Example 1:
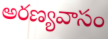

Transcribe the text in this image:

అరణ్యవాసం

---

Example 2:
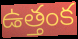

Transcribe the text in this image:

ఉత్తంక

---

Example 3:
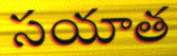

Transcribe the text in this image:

సయాత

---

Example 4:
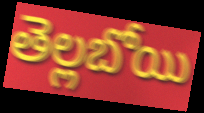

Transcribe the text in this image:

తెల్లబోయి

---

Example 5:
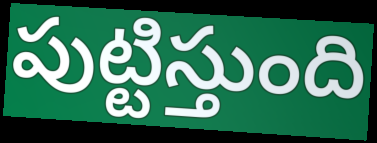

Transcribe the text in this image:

పుట్టిస్తుంది